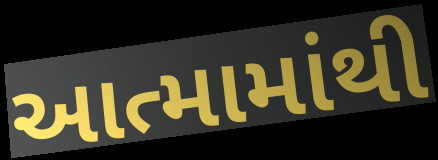
આત્મામાંથી